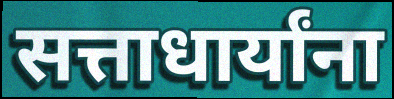
सत्ताधार्यांना